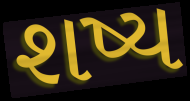
શષ્ય